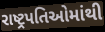
રાષ્ટ્રપતિઓમાંથી